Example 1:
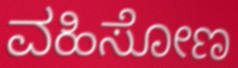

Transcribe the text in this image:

ವಹಿಸೋಣ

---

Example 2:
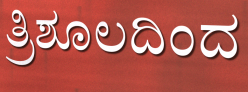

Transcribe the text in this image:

ತ್ರಿಶೂಲದಿಂದ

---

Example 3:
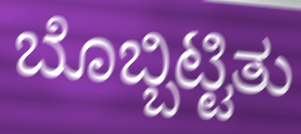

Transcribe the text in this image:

ಬೊಬ್ಬಿಟ್ಟಿತು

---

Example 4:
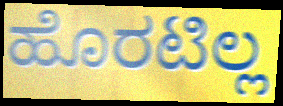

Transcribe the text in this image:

ಹೊರಟಿಲ್ಲ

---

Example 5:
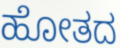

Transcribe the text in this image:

ಹೋತದ